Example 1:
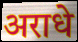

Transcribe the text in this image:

अराधे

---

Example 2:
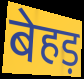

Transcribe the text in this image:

बेहड़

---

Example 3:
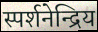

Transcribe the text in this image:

स्पर्शनेन्द्रिय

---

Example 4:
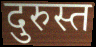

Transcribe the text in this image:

दुरुस्त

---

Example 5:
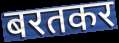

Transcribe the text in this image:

बरतकर